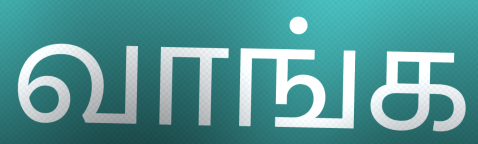
வாங்க